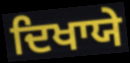
ਦਿਖਾਯੇ